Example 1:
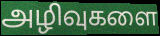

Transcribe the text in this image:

அழிவுகளை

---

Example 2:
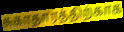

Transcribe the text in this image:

சுகாதாரத்திற்காக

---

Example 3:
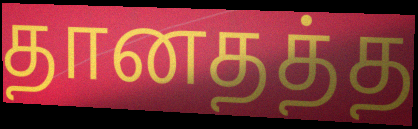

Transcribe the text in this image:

தானதத்த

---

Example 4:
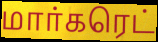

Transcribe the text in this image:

மார்கரெட்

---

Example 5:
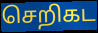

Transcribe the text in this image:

செறிகட